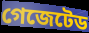
গেজেটেড